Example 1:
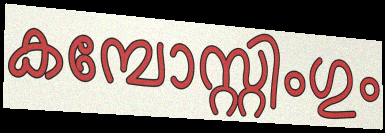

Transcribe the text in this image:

കമ്പോസ്റ്റിംഗും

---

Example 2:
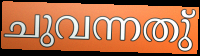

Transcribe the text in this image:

ചുവന്നതു്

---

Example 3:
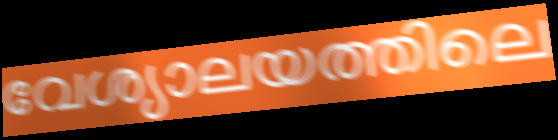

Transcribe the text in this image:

വേശ്യാലയത്തിലെ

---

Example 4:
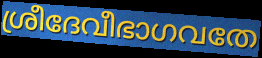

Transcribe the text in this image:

ശ്രീദേവീഭാഗവതേ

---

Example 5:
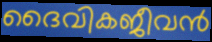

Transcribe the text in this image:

ദൈവികജീവൻ